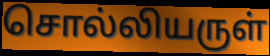
சொல்லியருள்